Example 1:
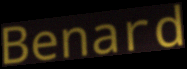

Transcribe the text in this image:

Benard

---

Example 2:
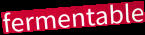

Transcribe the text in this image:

fermentable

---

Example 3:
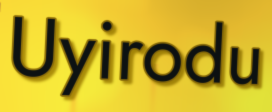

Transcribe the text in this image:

Uyirodu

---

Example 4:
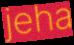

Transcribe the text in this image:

jeha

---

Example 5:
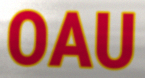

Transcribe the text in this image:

OAU